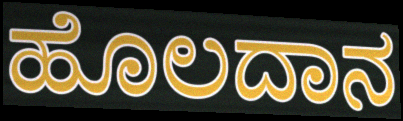
ಹೊಲದಾನ